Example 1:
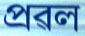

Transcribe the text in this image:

প্ৰৱল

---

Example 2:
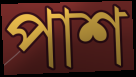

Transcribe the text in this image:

পাশ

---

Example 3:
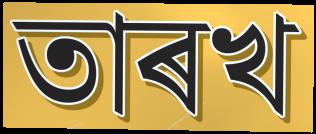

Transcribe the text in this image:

তাৰখ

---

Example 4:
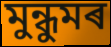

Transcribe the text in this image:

মুন্ধুমৰ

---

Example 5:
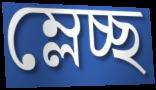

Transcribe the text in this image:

ম্লেচ্ছ